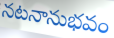
నటనానుభవం